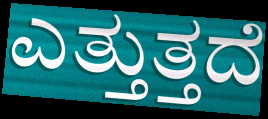
ಎತ್ತುತ್ತದೆ